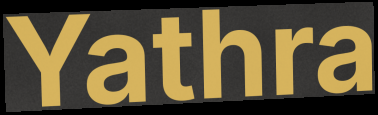
Yathra